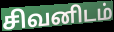
சிவனிடம்